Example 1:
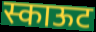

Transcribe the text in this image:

स्काऊट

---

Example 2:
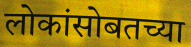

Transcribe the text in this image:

लोकांसोबतच्या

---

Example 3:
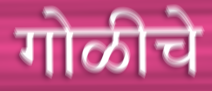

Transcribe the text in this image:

गोळीचे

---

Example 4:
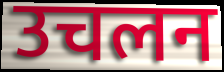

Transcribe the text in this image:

उचलन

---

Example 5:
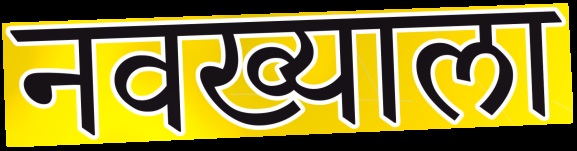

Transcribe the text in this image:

नवख्याला